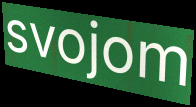
svojom